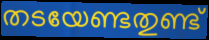
തടയേണ്ടതുണ്ട്